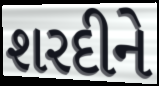
શરદીને